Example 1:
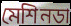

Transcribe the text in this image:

মেশিনডা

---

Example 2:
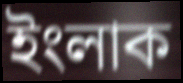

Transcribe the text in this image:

ইংলাক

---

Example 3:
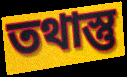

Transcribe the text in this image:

তথাস্তু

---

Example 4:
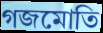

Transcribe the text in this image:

গজমোতি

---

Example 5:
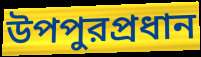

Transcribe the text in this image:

উপপুরপ্রধান